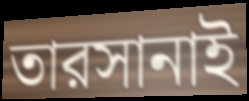
তারসানাই